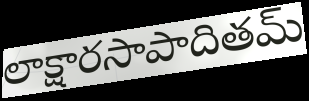
లాక్షారసాపాదితమ్